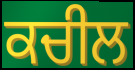
ਕਚੀਲ